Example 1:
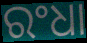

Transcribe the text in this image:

ରଂଧା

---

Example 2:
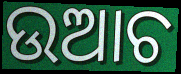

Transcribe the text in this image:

ଉଆଚ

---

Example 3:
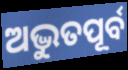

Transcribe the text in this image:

ଅଦ୍ଭୁତପୂର୍ବ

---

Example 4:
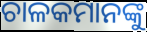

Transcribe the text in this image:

ଚାଳକମାନଙ୍କୁ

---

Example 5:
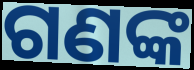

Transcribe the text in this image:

ଗଣଙ୍କ